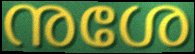
നുശേ